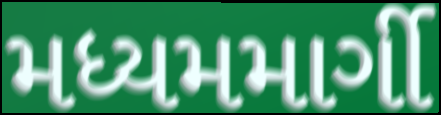
મધ્યમમાર્ગી